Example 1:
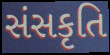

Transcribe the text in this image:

સંસકૃતિ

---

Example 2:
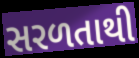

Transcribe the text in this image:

સરળતાથી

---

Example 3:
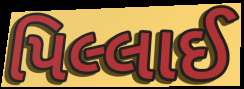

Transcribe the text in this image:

પિલ્લાઈ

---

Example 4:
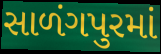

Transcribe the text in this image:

સાળંગપુરમાં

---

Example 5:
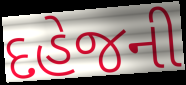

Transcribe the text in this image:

દહેજની